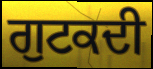
ਗੁਟਕਦੀ